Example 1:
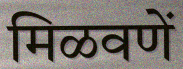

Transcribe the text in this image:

मिळवणें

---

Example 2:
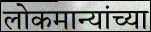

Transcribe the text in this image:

लोकमान्यांच्या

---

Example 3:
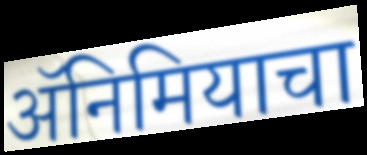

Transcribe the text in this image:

ॲनिमियाचा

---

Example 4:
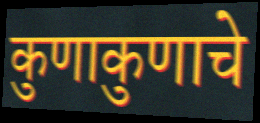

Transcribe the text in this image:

कुणाकुणाचे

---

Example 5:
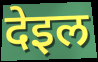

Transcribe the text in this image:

देइल